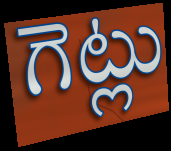
గెట్లు